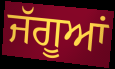
ਜੱਗੂਆਂ